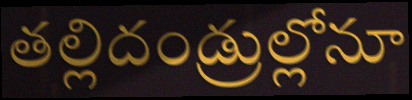
తల్లిదండ్రుల్లోనూ